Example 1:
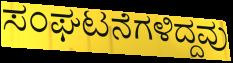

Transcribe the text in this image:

ಸಂಘಟನೆಗಳಿದ್ದವು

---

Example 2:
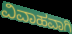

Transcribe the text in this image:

ವಿವಾಹವಾಗಿ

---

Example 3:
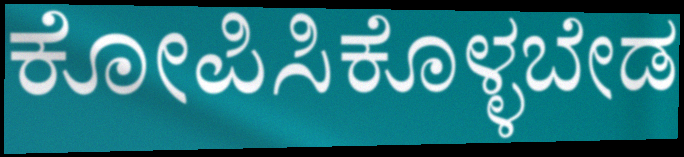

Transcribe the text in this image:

ಕೋಪಿಸಿಕೊಳ್ಳಬೇಡ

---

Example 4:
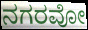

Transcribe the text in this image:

ನಗರವೋ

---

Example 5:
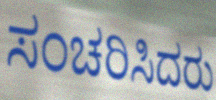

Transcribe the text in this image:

ಸಂಚರಿಸಿದರು